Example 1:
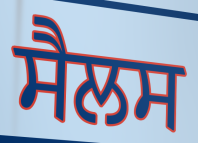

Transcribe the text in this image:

ਸੈਲਸ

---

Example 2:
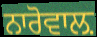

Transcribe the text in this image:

ਨਾਰੋਵਾਲ਼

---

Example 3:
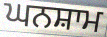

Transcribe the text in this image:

ਘਨਸ਼ਾਮ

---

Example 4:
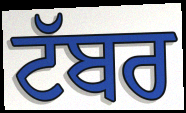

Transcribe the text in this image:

ਟੱਬਰ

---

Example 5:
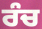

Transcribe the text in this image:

ਰੰਚ